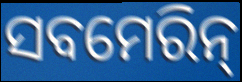
ସବମେରିନ୍